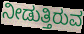
ನೀಡುತ್ತಿರುವ